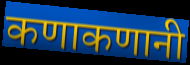
कणाकणानी